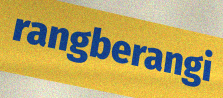
rangberangi